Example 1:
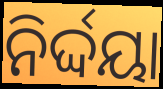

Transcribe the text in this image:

ନିର୍ଦ୍ଦୟା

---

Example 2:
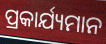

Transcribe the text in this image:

ପ୍ରକାର୍ଯ୍ୟମାନ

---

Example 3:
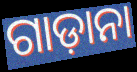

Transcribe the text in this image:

ଗାଡ଼ାନା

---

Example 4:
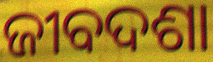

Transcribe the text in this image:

ଜୀବଦଶା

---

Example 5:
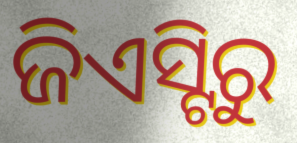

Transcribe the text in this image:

ଜିଏସ୍ଟିରୁ